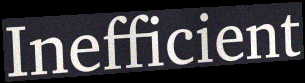
Inefficient